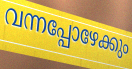
വന്നപ്പോഴേക്കും